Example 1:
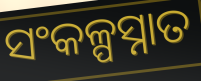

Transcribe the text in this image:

ସଂକଳ୍ପସ୍ନାତ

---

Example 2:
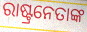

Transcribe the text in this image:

ରାଷ୍ଟ୍ରନେତାଙ୍କ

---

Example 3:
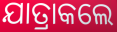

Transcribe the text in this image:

ଯାତ୍ରାକଲେ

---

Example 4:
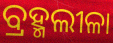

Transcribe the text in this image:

ବ୍ରହ୍ମଲୀଳା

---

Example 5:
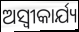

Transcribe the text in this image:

ଅସ୍ୱୀକାର୍ଯ୍ୟ